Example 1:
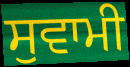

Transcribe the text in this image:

ਸੁਵਾਮੀ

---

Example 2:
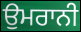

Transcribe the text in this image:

ਉਮਰਾਨੀ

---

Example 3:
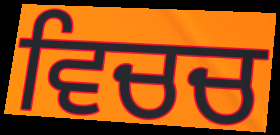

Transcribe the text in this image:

ਵਿਚਚ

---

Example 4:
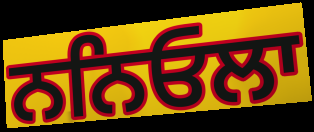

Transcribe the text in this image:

ਨਨਿਓਲਾ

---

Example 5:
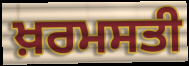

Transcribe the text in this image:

ਖ਼ਰਮਸਤੀ